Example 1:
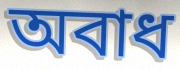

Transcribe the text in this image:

অবাধ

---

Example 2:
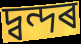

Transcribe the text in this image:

দ্বন্দৰ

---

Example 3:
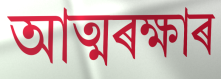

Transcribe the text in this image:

আত্মৰক্ষাৰ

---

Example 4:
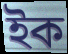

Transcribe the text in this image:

ইক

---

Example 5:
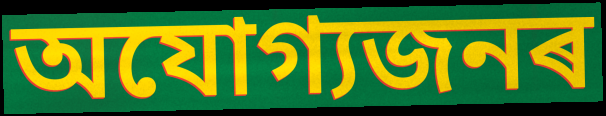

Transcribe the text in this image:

অযোগ্যজনৰ